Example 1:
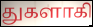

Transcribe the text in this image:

துகளாகி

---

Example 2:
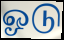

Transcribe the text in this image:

ஓடு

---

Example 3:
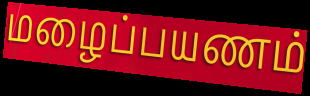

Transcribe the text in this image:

மழைப்பயணம்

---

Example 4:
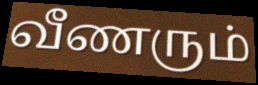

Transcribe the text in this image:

வீணரும்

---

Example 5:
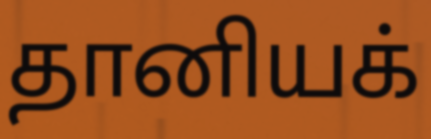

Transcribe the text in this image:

தானியக்